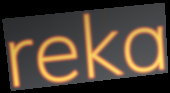
reka